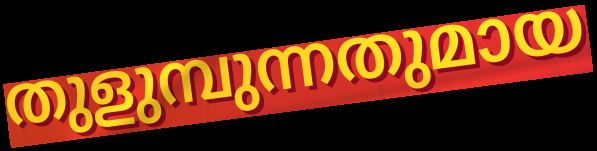
തുളുമ്പുന്നതുമായ